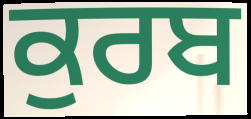
ਕੁਰਬ